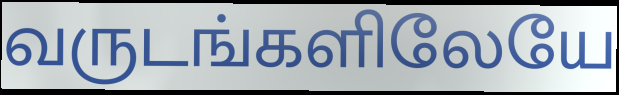
வருடங்களிலேயே